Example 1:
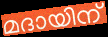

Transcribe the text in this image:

മദായിന്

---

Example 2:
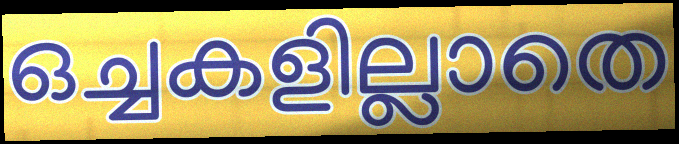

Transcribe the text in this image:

ഒച്ചകളില്ലാതെ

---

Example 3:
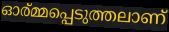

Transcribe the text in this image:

ഓര്മ്മപ്പെടുത്തലാണ്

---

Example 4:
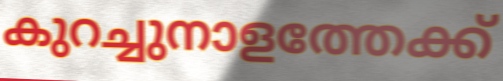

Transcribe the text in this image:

കുറച്ചുനാളത്തേക്ക്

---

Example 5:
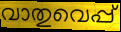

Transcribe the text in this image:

വാതുവെപ്പ്